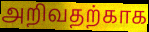
அறிவதற்காக